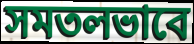
সমতলভাবে